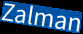
Zalman